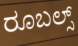
ರೂಬಲ್ಸ್